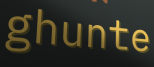
ghunte